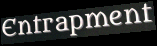
Entrapment